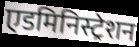
एडमिनिस्ट्रेशन